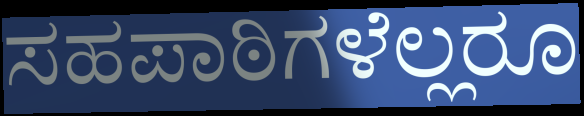
ಸಹಪಾಠಿಗಳೆಲ್ಲರೂ